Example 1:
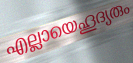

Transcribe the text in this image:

എല്ലായെഹൂദ്യരും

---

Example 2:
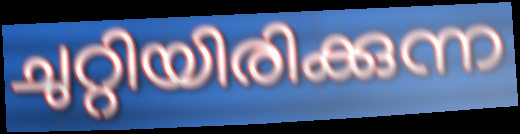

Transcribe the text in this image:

ചുറ്റിയിരിക്കുന്ന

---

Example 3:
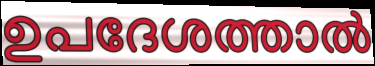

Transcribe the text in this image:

ഉപദേശത്താൽ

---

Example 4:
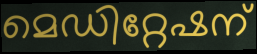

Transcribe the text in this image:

മെഡിറ്റേഷന്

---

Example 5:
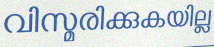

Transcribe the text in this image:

വിസ്മരിക്കുകയില്ല